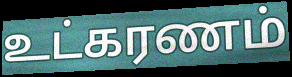
உட்கரணம்